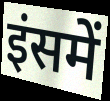
इंसमें